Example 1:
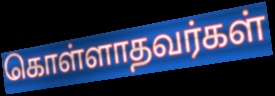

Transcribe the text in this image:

கொள்ளாதவர்கள்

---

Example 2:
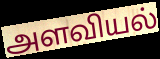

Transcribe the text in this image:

அளவியல்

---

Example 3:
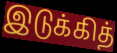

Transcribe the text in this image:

இடுக்கித்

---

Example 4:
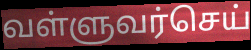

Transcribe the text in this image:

வள்ளுவர்செய்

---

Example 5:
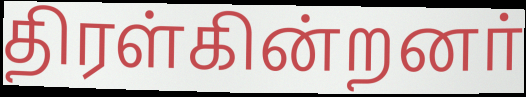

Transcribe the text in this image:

திரள்கின்றனர்